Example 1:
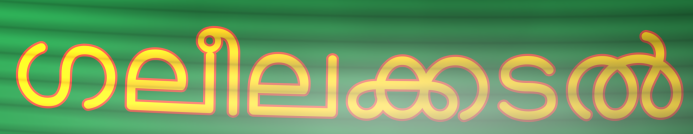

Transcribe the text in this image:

ഗലീലക്കടൽ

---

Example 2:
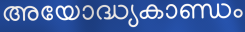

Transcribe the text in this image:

അയോദ്ധ്യകാണ്ഡം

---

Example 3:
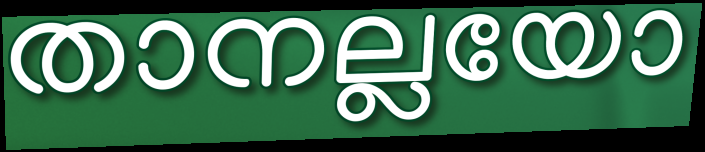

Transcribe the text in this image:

താനല്ലയോ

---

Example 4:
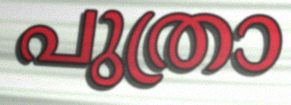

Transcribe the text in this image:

പുത്രാ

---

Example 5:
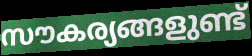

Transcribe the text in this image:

സൗകര്യങ്ങളുണ്ട്